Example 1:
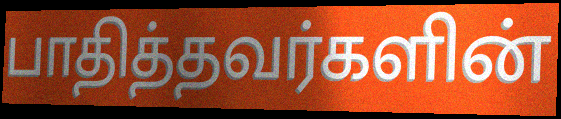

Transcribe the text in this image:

பாதித்தவர்களின்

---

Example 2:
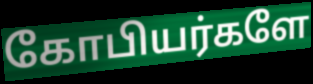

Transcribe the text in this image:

கோபியர்களே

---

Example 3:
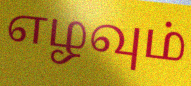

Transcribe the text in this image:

எழவும்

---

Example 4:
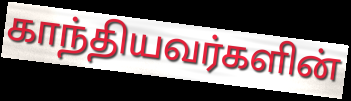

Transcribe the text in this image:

காந்தியவர்களின்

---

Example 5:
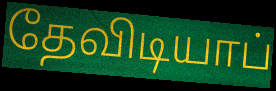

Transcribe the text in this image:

தேவிடியாப்